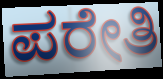
ಪರೇತಿ